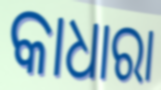
କାଧାରା